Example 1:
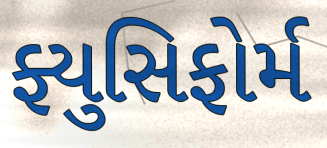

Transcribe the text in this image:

ફ્યુસિફોર્મ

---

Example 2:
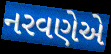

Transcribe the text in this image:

નરવણેએ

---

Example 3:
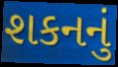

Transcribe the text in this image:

શકનનું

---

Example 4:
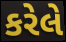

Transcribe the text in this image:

કરેલે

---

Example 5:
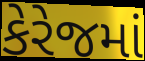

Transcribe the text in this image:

કેરેજમાં